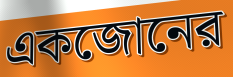
একজোনের